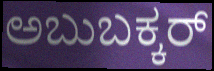
ಅಬುಬಕ್ಕರ್